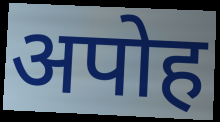
अपोह